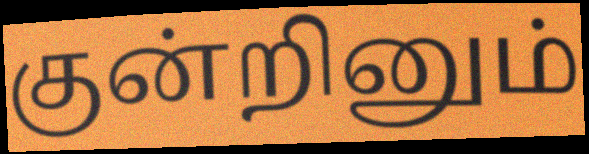
குன்றினும்